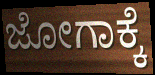
ಜೋಗಾಕ್ಕೆ